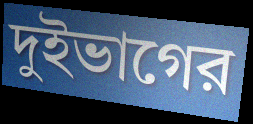
দুইভাগের